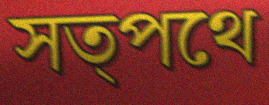
সত্পথে